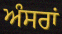
ਅੰਸਰਾਂ